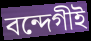
বন্দেগীই